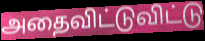
அதைவிட்டுவிட்டு